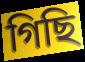
গিছি